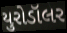
યુરોડૉલર